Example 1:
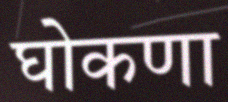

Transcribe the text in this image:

घोकणा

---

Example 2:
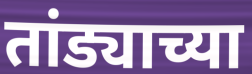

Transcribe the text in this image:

तांड्याच्या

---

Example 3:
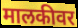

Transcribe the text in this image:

मालकीवर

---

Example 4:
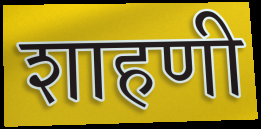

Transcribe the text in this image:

शाहणी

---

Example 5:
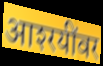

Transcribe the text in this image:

आश्रयींवर